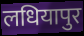
लधियापुर